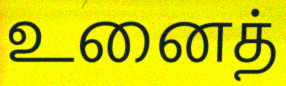
உனைத்